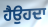
ਹੈਉਹਦਾ